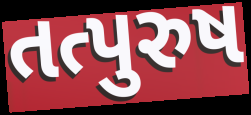
તત્પુરુષ